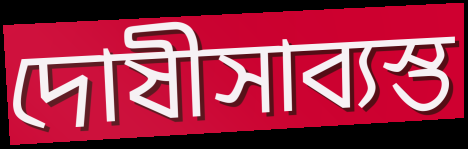
দোষীসাব্যস্ত